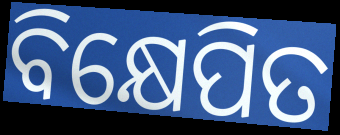
ବିକ୍ଷେପିତ